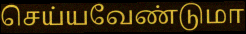
செய்யவேண்டுமா